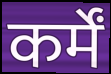
कर्में